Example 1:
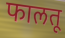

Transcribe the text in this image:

फालतू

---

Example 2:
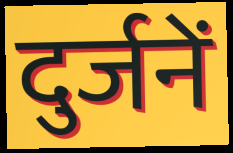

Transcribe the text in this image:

दुर्जनें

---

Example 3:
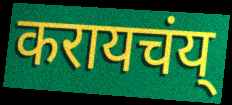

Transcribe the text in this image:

करायचंय्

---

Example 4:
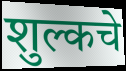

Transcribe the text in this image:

शुल्कचे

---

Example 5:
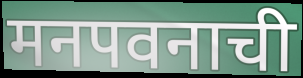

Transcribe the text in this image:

मनपवनाची